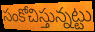
సంకోచిస్తున్నట్టు